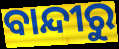
ବାନ୍ଦୀରୁ